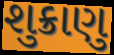
શુક્રાણુ